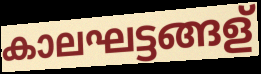
കാലഘട്ടങ്ങള്